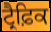
ਟ੍ਰੈਫ਼ਿਕ